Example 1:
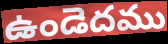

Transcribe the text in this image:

ఉండెదము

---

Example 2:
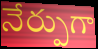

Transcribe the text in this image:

నేర్పుగా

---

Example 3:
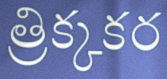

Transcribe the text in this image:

త్రిక్కకర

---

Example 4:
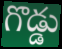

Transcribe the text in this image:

గొడ్డు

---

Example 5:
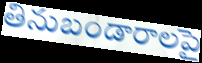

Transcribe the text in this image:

తినుబండారాలపై